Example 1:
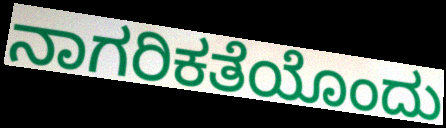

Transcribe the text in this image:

ನಾಗರಿಕತೆಯೊಂದು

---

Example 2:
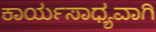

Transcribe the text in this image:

ಕಾರ್ಯಸಾಧ್ಯವಾಗಿ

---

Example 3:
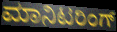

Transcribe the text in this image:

ಮಾನಿಟರಿಂಗ್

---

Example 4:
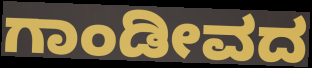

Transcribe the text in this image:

ಗಾಂಡೀವದ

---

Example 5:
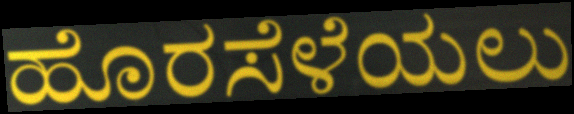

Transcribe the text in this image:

ಹೊರಸೆಳೆಯಲು